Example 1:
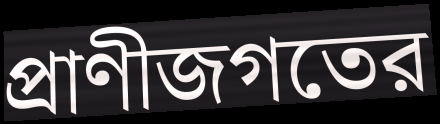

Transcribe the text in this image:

প্রাণীজগতের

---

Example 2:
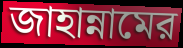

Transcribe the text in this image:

জাহান্নামের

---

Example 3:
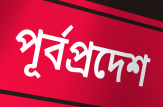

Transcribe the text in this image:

পূর্বপ্রদেশ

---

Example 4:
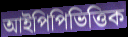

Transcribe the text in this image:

আইপিপিভিত্তিক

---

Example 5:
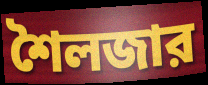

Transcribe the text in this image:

শৈলজার